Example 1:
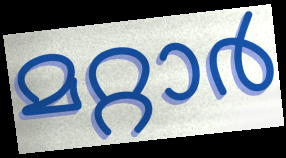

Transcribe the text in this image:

മറ്റാർ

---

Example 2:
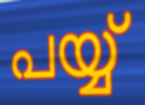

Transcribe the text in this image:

പയ്യ്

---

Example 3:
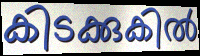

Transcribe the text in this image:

കിടക്കുകിൽ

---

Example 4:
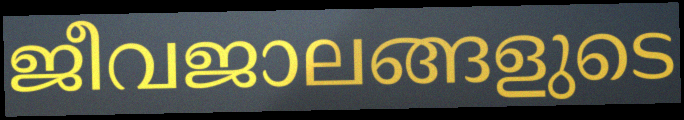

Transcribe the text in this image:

ജീവജാലങ്ങളുടെ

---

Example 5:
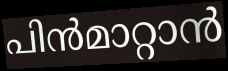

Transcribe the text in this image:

പിൻമാറ്റാൻ